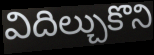
విదిల్చుకొని